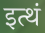
इत्थं